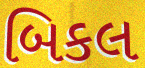
બિકલ